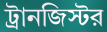
ট্রানজিস্টর